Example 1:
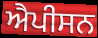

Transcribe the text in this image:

ਐਪੀਸਨ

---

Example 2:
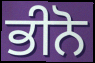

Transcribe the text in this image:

ਭੀਨੋ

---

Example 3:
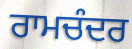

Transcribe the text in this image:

ਰਾਮਚੰਦਰ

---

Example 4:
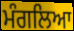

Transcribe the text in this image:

ਮੰਗਲਿਆ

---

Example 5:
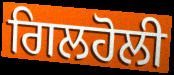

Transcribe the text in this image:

ਗਿਲਹੋਲੀ